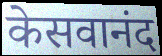
केसवानंद